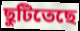
ছুটিতেছে